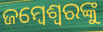
ଜମ୍ବେଶ୍ୱରଙ୍କୁ